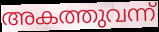
അകത്തുവന്ന്